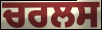
ਚਰਲਸ